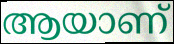
ആയാണ്